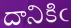
దానికిఁ